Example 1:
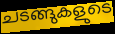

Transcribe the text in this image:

ചടങ്ങുകളുടെ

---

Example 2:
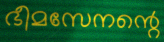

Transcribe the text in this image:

ഭീമസേനന്റെ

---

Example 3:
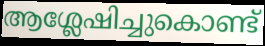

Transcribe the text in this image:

ആശ്ലേഷിച്ചുകൊണ്ട്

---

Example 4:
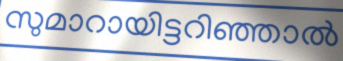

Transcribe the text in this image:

സുമാറായിട്ടറിഞ്ഞാൽ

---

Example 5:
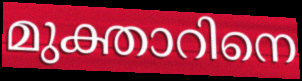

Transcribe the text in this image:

മുക്താറിനെ